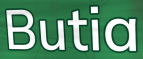
Butia